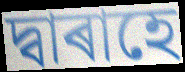
দ্বাৰাহে